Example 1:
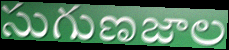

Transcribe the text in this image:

సుగుణజాల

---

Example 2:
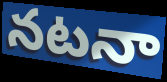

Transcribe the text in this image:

నటనా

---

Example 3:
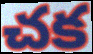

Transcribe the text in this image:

చక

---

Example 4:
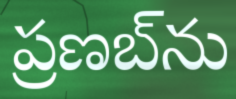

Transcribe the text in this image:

ప్రణబ్‌ను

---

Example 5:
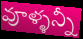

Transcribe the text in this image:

వూళ్ళన్నీ